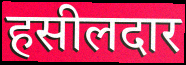
हसीलदार